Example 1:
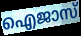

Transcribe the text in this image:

ഐജാസ്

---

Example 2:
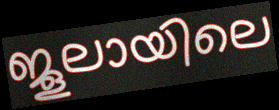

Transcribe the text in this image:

ജൂലായിലെ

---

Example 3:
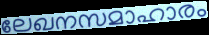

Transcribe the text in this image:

ലേഖനസമാഹാരം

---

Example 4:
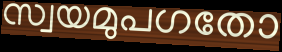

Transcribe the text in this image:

സ്വയമുപഗതോ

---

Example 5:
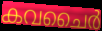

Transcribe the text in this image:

കവചൈർ